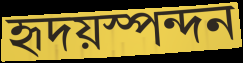
হৃদয়স্পন্দন